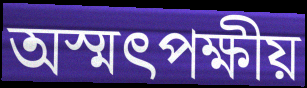
অস্মৎপক্ষীয়